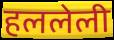
हललेली